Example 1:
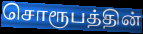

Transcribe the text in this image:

சொரூபத்தின்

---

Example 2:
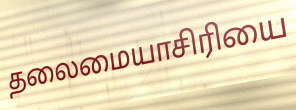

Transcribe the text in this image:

தலைமையாசிரியை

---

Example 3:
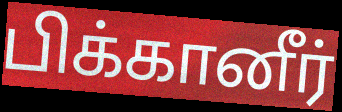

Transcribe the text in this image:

பிக்கானீர்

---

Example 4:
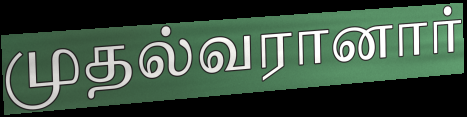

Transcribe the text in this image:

முதல்வரானார்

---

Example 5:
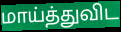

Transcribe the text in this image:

மாய்த்துவிட